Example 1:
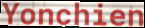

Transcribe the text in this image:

Yonchien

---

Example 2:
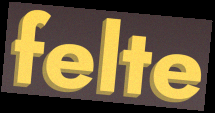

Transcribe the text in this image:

felte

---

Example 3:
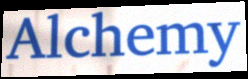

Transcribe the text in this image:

Alchemy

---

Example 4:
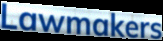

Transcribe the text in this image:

Lawmakers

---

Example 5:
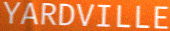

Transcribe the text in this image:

YARDVILLE